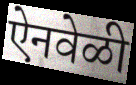
ऐनवेळी